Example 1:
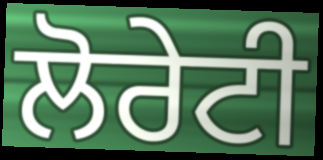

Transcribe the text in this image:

ਲੋਰੇਟੀ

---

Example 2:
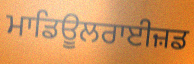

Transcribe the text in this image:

ਮਾਡਿਊਲਰਾਈਜ਼ਡ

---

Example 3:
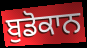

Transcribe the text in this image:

ਬੁਡੋਕਾਨ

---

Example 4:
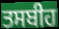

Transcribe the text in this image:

ਤਸਬੀਹ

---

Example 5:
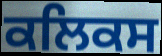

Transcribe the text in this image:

ਕਲਿਕਸ